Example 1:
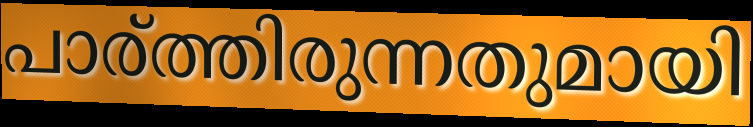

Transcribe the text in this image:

പാര്ത്തിരുന്നതുമായി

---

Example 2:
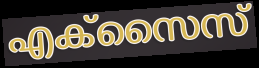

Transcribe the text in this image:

എക്‌സൈസ്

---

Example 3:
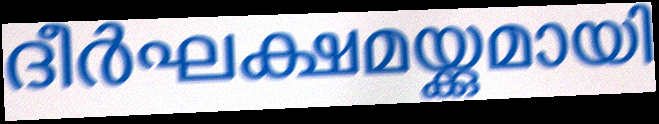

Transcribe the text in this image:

ദീർഘക്ഷമയ്ക്കുമായി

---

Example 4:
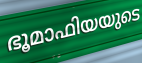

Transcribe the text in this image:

ഭൂമാഫിയയുടെ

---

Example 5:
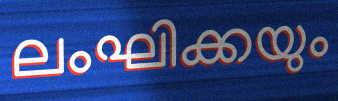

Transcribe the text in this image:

ലംഘിക്കയും